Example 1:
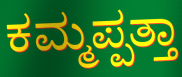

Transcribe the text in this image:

ಕಮ್ಮಪ್ಪತ್ತಾ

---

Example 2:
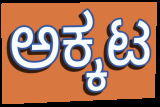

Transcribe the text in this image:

ಅಕ್ಕಟ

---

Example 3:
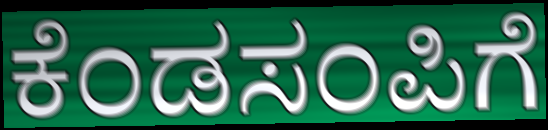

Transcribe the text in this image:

ಕೆಂಡಸಂಪಿಗೆ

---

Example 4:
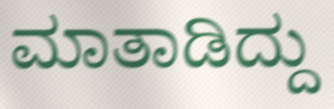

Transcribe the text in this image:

ಮಾತಾಡಿದ್ದು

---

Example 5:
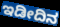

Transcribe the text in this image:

ಇಡೀದಿನ